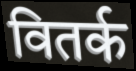
वितर्क